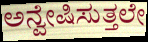
ಅನ್ವೇಷಿಸುತ್ತಲೇ